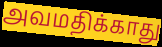
அவமதிக்காது